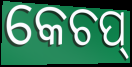
କେଚପ୍